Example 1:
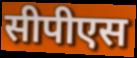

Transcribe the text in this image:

सीपीएस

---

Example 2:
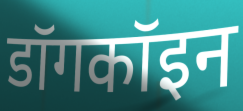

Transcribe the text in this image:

डॉगकॉइन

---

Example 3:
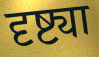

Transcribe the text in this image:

दृष्ट्या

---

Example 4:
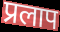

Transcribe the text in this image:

प्रलाप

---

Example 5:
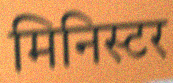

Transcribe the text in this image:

मिनिस्टर